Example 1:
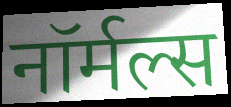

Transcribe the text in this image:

नॉर्मल्स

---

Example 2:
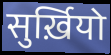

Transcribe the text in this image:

सुर्ख़ियो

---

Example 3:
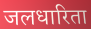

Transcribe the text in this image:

जलधारिता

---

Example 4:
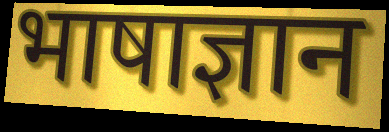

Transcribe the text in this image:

भाषाज्ञान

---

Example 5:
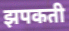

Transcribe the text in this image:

झपकती